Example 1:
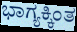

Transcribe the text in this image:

ಭಾಗ್ಯಕ್ಕಿಂತ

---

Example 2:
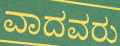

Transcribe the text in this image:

ವಾದವರು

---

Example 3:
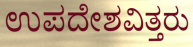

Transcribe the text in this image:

ಉಪದೇಶವಿತ್ತರು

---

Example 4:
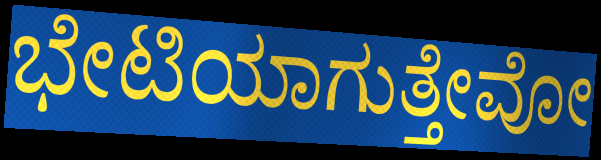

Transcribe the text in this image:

ಭೇಟಿಯಾಗುತ್ತೇವೋ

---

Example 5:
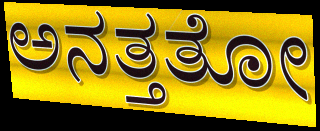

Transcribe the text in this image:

ಅನತ್ತತೋ